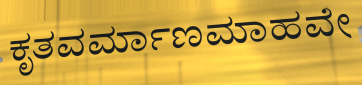
ಕೃತವರ್ಮಾಣಮಾಹವೇ